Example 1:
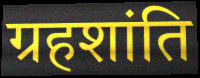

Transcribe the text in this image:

ग्रहशांति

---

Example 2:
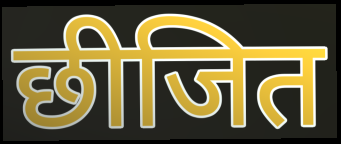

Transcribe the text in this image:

छीजित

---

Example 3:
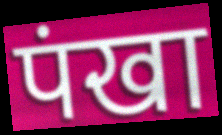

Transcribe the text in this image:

पंखा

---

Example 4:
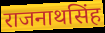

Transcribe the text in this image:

राजनाथसिंह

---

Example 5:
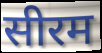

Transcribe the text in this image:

सीरम